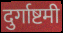
दुर्गाष्टमी